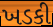
ખડકી